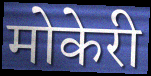
मोकेरी